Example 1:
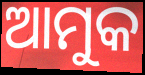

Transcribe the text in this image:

ଆମୁକ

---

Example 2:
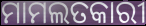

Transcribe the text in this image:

ମାମଲତକାରୀ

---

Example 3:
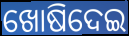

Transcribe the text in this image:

ଖୋଷିଦେଇ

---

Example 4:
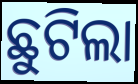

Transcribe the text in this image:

ଛୁଟିଲା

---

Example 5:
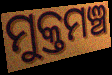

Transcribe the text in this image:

ମୁକ୍ତମଞ୍ଚ